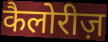
कैलोरीज़